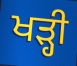
ਖੜ੍ਹੀ